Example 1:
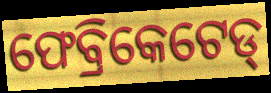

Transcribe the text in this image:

ଫେବ୍ରିକେଟେଡ୍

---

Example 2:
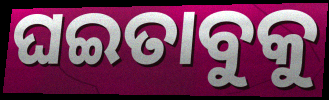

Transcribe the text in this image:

ଘଇତାବୁକୁ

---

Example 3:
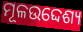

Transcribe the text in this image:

ମୂଳଉଦ୍ଦେଶ୍ୟ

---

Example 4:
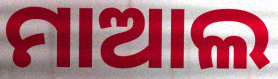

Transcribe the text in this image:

ମାଆଲ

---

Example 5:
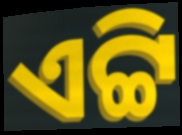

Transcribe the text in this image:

ଏଟ୍ଟି